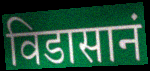
विडासानं